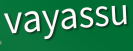
vayassu